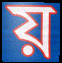
য়